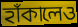
হাঁকালেও